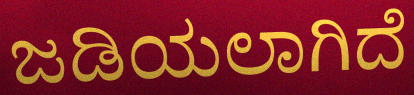
ಜಡಿಯಲಾಗಿದೆ